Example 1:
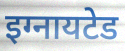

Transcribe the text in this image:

इग्नायटेड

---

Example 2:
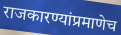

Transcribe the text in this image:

राजकारण्यांप्रमाणेच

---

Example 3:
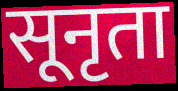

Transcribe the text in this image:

सूनृता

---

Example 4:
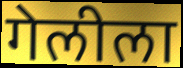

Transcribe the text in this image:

गेलीला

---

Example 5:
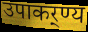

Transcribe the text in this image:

उपाकर्ण्य